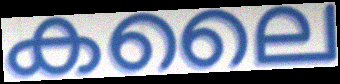
കലൈ